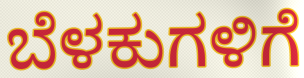
ಬೆಳಕುಗಳಿಗೆ